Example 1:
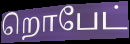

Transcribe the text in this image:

றொபேட்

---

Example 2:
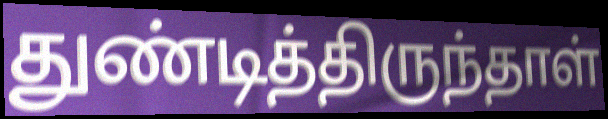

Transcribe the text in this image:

துண்டித்திருந்தாள்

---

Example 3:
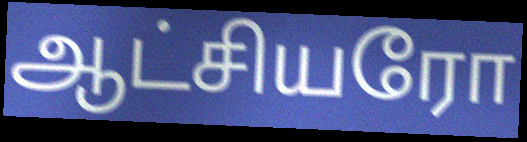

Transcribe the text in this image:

ஆட்சியரோ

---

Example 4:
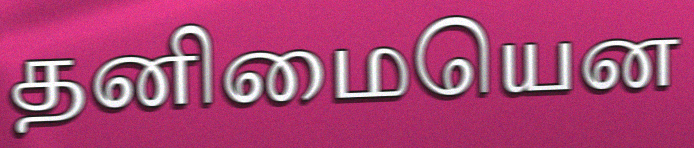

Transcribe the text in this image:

தனிமையென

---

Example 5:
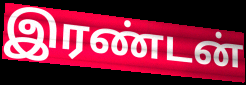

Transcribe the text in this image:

இரண்டன்